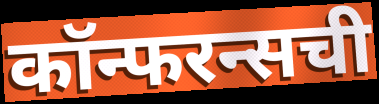
कॉन्फरन्सची